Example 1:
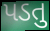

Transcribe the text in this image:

પડતુ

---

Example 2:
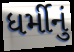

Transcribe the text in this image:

ધર્મીનું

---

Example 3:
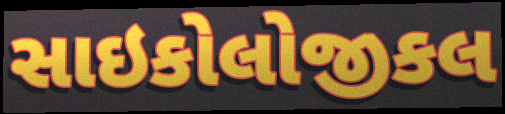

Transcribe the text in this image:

સાઇકોલોજીકલ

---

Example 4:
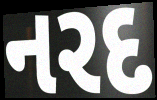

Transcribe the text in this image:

નરદ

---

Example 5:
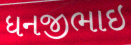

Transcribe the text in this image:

ધનજીભાઇ